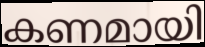
കണമായി